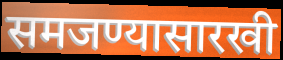
समजण्यासारखी